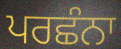
ਪਰਛੰਨਾ